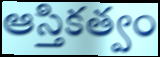
ఆస్తికత్వం